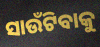
ସାଉଁଟିବାକୁ